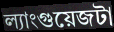
ল্যাংগুয়েজটা